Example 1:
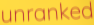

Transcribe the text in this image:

unranked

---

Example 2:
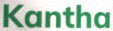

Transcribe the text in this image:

Kantha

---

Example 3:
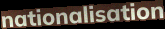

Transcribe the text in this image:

nationalisation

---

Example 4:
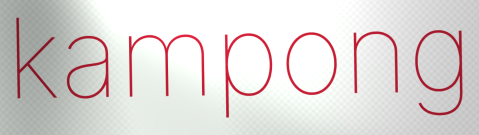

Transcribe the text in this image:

kampong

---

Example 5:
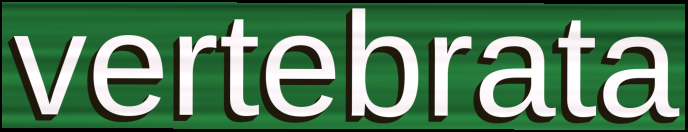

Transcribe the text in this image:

vertebrata